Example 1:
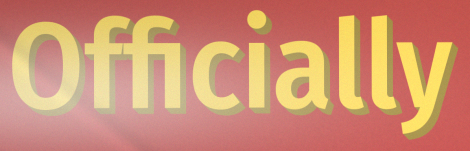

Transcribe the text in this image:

Officially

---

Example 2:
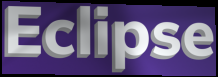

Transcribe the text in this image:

Eclipse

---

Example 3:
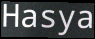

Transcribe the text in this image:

Hasya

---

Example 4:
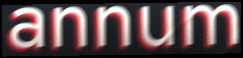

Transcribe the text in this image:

annum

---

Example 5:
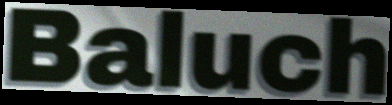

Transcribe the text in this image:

Baluch